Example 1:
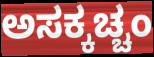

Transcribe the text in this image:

ಅಸಕ್ಕಚ್ಚಂ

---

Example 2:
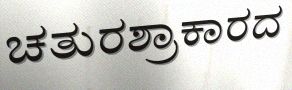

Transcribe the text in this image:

ಚತುರಶ್ರಾಕಾರದ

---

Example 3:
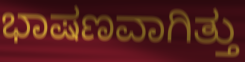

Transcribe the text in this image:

ಭಾಷಣವಾಗಿತ್ತು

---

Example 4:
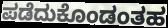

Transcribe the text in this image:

ಪಡೆದುಕೊಂಡಂತಹ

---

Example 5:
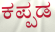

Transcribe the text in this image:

ಕಪ್ಪಡ